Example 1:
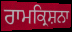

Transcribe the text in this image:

ਰਾਮਕ੍ਰਿਸ਼ਨਾ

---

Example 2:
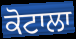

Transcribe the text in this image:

ਕੋਟਾਲਾ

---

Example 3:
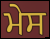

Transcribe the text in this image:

ਮੇਸ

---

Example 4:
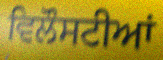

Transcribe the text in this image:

ਵਿਲੌਸਟੀਆਂ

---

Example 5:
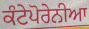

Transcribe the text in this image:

ਕੰਟੇਪੋਰੇਨੀਆ